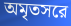
অমৃতসরে